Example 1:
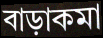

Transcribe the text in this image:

বাড়াকমা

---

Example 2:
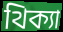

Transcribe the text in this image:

থিক্যা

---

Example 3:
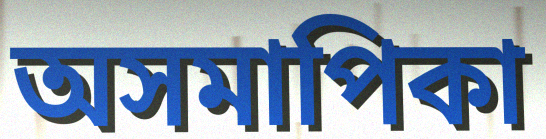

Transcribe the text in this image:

অসমাপিকা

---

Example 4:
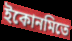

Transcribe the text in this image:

ইকোনমিতে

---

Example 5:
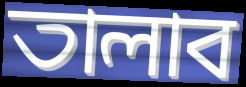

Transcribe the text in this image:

তালাব